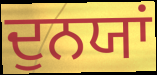
ਦੁਨਯਾਂ